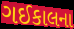
ગઈકાલના